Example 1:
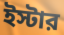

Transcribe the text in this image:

ইস্টার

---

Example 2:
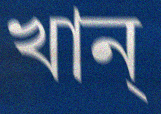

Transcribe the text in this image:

খান্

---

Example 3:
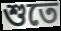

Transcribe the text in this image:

শুতে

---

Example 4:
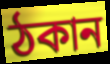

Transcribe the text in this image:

ঠকান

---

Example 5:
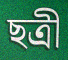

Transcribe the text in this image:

ছত্রী